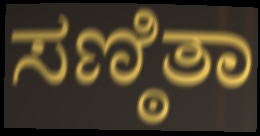
ಸಣ್ಠಿತಾ